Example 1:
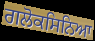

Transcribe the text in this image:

ਗਲੋਕਸਿਨਿਆ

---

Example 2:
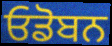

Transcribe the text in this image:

ਓਡੋਬਨ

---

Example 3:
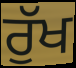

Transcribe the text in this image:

ਰੁੱਖ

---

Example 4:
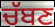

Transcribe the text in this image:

ਚੱਬਣ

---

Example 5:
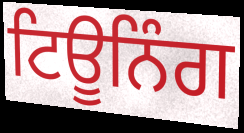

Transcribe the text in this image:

ਟਿਊਨਿੰਗ